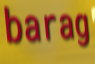
barag